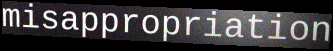
misappropriation